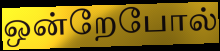
ஒன்றேபோல்